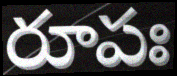
రూపః